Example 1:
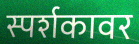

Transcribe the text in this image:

स्पर्शकावर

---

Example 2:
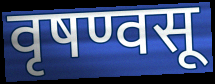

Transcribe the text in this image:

वृषण्वसू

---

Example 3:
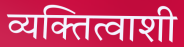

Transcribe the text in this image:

व्यक्तित्वाशी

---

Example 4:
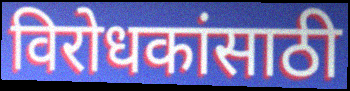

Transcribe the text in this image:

विरोधकांसाठी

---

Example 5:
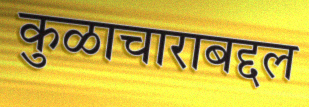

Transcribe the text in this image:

कुळाचाराबद्दल